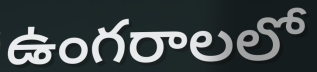
ఉంగరాలలో